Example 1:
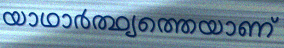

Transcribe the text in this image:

യാഥാർത്ഥ്യത്തെയാണ്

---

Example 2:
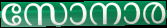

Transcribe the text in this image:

സോനാര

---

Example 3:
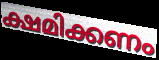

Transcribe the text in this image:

ക്ഷമിക്കണം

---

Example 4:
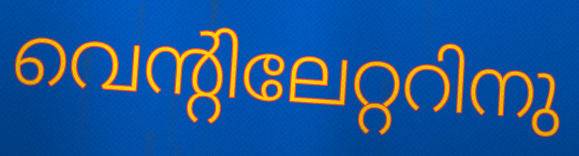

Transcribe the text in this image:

വെന്റിലേറ്ററിനു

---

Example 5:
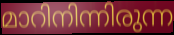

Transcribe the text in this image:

മാറിനിന്നിരുന്ന